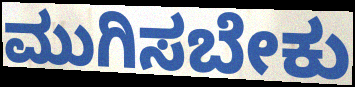
ಮುಗಿಸಬೇಕು